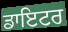
ਡਾਇਟਰ